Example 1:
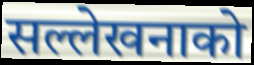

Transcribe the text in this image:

सल्लेखनाको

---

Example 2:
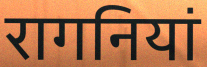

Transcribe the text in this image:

रागनियां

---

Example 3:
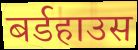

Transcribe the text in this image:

बर्डहाउस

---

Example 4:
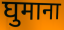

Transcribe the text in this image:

घुमाना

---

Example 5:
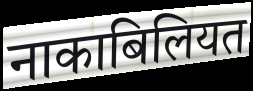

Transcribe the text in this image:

नाकाबिलियत